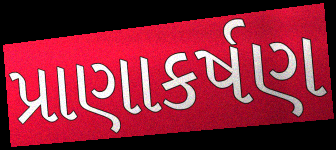
પ્રાણાકર્ષણ